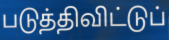
படுத்திவிட்டுப்